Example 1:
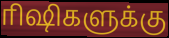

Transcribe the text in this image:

ரிஷிகளுக்கு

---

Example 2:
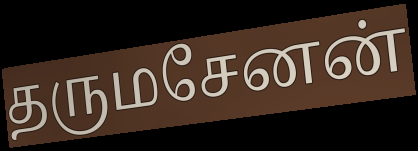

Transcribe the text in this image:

தருமசேனன்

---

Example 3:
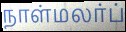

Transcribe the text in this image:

நாள்மலர்ப்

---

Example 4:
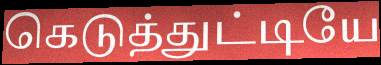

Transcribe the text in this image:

கெடுத்துட்டியே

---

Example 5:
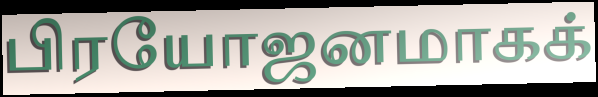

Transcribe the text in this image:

பிரயோஜனமாகக்